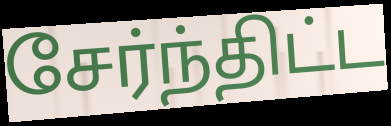
சேர்ந்திட்ட